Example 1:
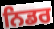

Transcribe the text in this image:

ਨਿਡਰ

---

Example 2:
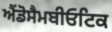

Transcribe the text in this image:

ਐਂਡੋਸੈਮਬੀਓਟਿਕ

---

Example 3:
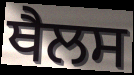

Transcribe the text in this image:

ਥੈਲਸ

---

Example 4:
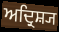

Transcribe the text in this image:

ਅਦ੍ਰਿਸ਼੍ਯ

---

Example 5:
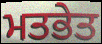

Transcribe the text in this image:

ਮਤਭੇਤ